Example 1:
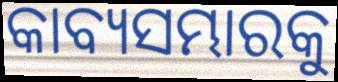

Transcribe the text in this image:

କାବ୍ୟସମ୍ଭାରକୁ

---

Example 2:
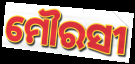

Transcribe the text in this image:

ମୌରସୀ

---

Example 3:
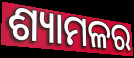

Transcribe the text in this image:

ଶ୍ୟାମଳର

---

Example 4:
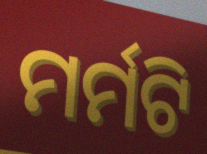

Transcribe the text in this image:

ମର୍ମଟି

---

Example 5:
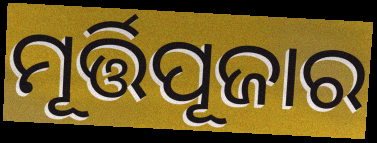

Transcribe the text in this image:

ମୂର୍ତ୍ତିପୂଜାର